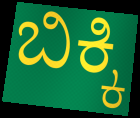
ಬಿಕ್ಕಿ